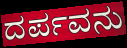
ದರ್ಪವನು